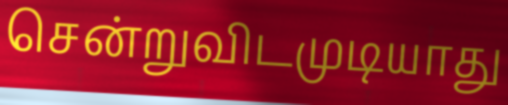
சென்றுவிடமுடியாது